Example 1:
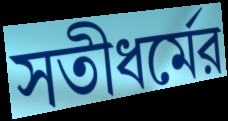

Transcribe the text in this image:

সতীধর্মের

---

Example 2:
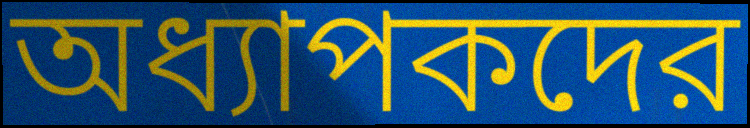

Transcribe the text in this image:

অধ্যাপকদের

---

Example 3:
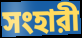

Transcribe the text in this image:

সংহারী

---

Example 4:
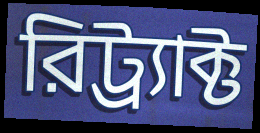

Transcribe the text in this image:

রিট্র্যাক্ট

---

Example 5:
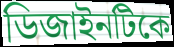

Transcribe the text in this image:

ডিজাইনটিকে